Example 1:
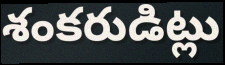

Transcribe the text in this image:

శంకరుడిట్లు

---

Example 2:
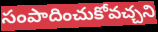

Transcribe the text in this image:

సంపాదించుకోవచ్చని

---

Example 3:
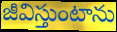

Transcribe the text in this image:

జీవిస్తుంటాను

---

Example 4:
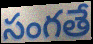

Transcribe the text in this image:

సంగతే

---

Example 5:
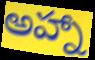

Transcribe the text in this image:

అహ్నా